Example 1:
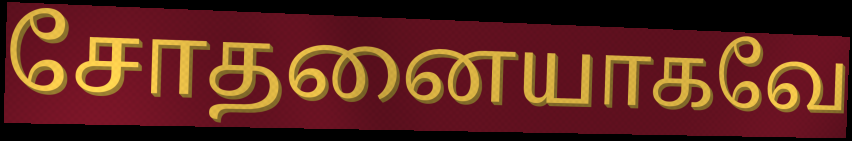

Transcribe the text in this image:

சோதனையாகவே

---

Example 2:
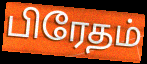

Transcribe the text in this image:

பிரேதம்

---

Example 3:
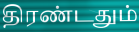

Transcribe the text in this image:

திரண்டதும்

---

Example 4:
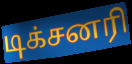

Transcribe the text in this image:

டிக்சனரி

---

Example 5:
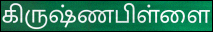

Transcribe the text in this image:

கிருஷ்ணபிள்ளை